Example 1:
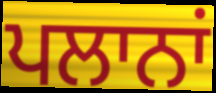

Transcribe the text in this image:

ਪਲਾਨਾਂ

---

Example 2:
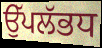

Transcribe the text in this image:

ਉੱਪਲੱਭਧ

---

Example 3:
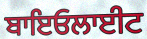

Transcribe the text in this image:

ਬਾਇਓਲਾਈਟ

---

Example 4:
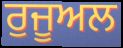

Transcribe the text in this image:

ਰੁਜੂਅਲ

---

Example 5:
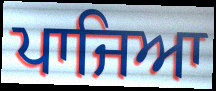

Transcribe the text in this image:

ਪਾਜਿਆ